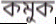
কমুক